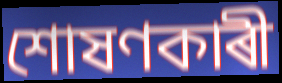
শোষণকাৰী